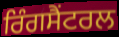
ਰਿੰਗਸੈਂਟਰਲ